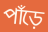
পাঁড়ে